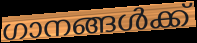
ഗാനങ്ങൾക്ക്